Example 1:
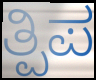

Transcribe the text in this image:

ತ್ಪಿಪ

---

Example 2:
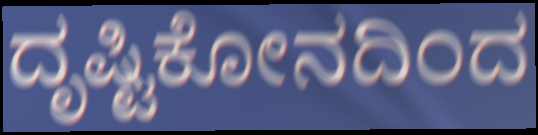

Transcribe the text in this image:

ದೃಷ್ಟಿಕೋನದಿಂದ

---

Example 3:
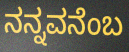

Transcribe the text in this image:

ನನ್ನವನೆಂಬ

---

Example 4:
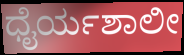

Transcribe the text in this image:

ಧೈರ್ಯಶಾಲೀ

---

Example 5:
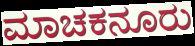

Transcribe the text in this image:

ಮಾಚಕನೂರು